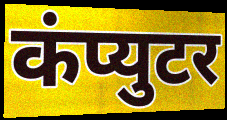
कंप्युटर